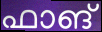
ഫാങ്